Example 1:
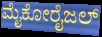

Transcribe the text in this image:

ಮೈಕೋರೈಜಲ್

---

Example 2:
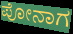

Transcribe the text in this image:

ಪೋನಾಗ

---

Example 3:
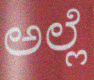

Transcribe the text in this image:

ಅಲ್ಲೆ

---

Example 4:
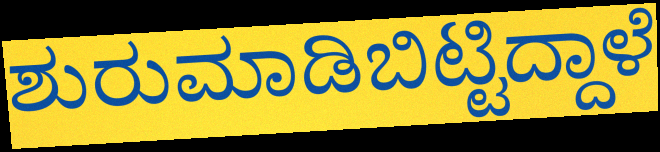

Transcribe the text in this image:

ಶುರುಮಾಡಿಬಿಟ್ಟಿದ್ದಾಳೆ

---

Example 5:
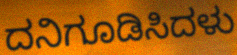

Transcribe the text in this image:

ದನಿಗೂಡಿಸಿದಳು